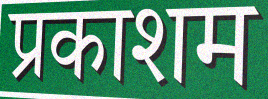
प्रकाशम